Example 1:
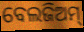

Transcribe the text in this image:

ବେଲଜିଅମ୍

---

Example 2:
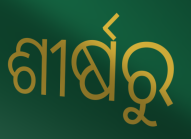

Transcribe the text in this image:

ଶୀର୍ଷରୁ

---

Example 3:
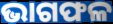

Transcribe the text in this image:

ଭାଗଫଳ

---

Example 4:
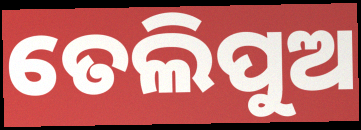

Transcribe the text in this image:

ତେଲିପୁଅ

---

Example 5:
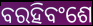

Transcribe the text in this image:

ବରହିବଂଶେ